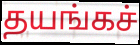
தயங்கச்